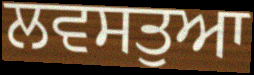
ਲਵਸਤੁਆ